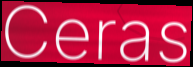
Ceras